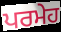
ਪਰਮੇਹ